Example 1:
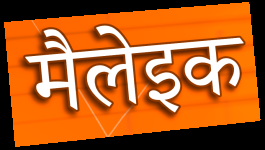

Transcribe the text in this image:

मैलेइक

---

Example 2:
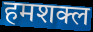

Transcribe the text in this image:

हमशक्ल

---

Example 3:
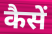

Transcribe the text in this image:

कैसें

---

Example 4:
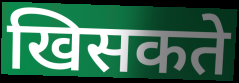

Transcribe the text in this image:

खिसकते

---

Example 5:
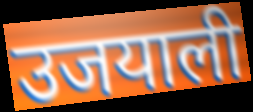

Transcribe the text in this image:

उजयाली